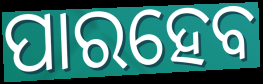
ପାରହେବ